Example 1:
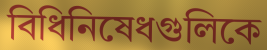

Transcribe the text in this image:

বিধিনিষেধগুলিকে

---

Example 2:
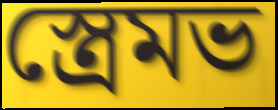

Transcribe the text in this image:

স্ত্রেমভ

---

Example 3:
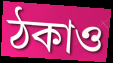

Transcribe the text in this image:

ঠকাও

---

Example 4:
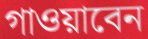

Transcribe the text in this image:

গাওয়াবেন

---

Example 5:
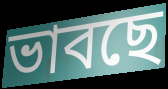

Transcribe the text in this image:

ভাবছে